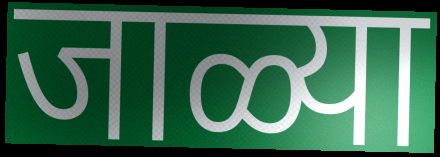
जाळ्या